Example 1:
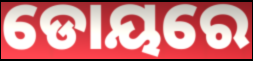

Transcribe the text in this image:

ଡୋୟରେ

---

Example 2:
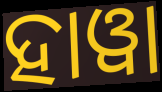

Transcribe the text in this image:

ହାୱା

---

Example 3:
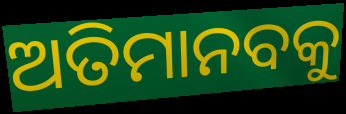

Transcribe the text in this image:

ଅତିମାନବକୁ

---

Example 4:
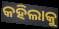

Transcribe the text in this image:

କହିଲାକୁ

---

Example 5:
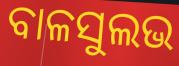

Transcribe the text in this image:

ବାଳସୁଲଭ